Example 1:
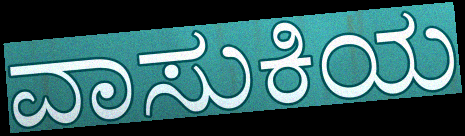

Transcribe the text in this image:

ವಾಸುಕಿಯ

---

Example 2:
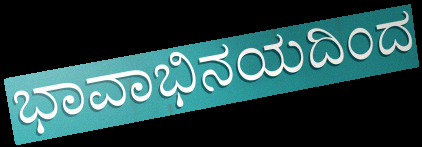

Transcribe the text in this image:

ಭಾವಾಭಿನಯದಿಂದ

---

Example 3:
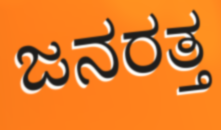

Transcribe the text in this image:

ಜನರತ್ತ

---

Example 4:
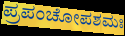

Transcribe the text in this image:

ಪ್ರಪಂಚೋಪಶಮಃ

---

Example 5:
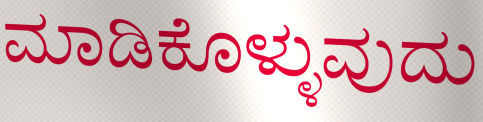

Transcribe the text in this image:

ಮಾಡಿಕೊಳ್ಳುವುದು